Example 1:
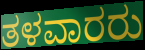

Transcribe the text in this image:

ತಳವಾರರು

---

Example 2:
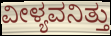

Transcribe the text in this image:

ವೀಳ್ಯವನಿತ್ತು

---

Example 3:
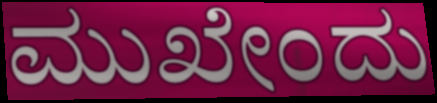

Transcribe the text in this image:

ಮುಖೇಂದು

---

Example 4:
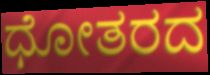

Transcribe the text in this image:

ಧೋತರದ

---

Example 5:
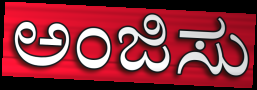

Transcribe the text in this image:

ಅಂಜಿಸು